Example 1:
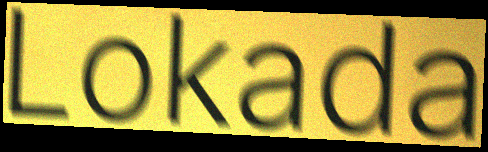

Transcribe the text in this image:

Lokada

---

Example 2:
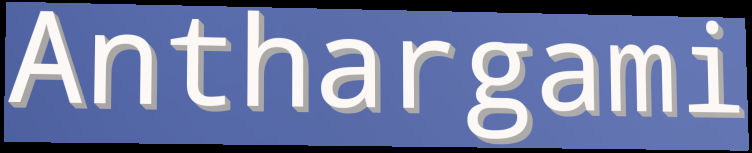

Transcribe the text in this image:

Anthargami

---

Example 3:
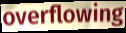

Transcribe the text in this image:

overflowing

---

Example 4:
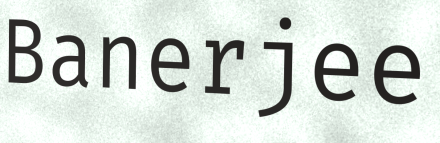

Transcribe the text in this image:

Banerjee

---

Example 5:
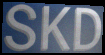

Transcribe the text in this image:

SKD